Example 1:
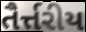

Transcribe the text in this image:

તૈર્ત્તરીય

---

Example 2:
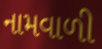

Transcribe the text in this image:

નામવાળી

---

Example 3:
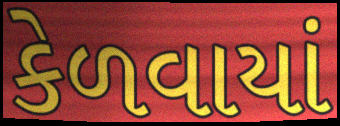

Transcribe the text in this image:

કેળવાયાં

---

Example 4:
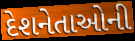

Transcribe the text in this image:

દેશનેતાઓની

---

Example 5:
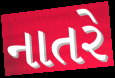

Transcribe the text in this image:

નાતરે